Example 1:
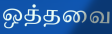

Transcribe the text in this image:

ஒத்தவை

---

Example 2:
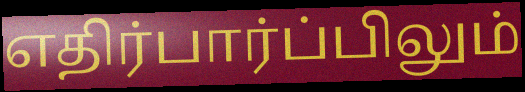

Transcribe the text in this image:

எதிர்பார்ப்பிலும்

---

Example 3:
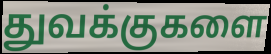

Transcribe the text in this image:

துவக்குகளை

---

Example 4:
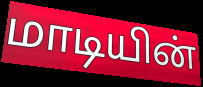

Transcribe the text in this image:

மாடியின்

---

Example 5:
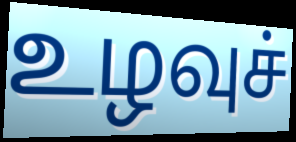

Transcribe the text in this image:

உழவுச்